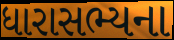
ધારાસભ્યના